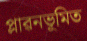
প্লাৱনভূমিত